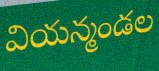
వియన్మండల